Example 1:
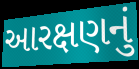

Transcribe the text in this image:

આરક્ષણનું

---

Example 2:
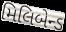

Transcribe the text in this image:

મિલિબેન્ડ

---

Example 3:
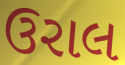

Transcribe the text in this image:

ઉરાલ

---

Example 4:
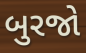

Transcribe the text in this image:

બુરજો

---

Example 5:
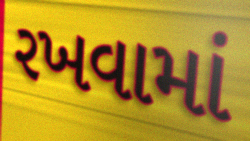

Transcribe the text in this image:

રખવામાં